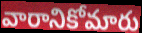
వారానికోమారు